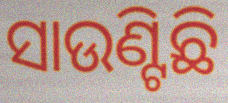
ସାଉଣ୍ଟିଛି